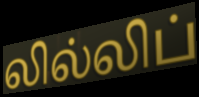
லில்லிப்